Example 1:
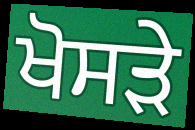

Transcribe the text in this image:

ਖੋਸੜੇ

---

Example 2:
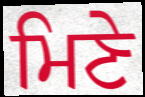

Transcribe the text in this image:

ਮਿਣੇ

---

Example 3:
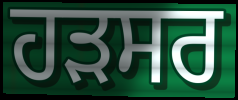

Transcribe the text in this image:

ਹੜਸਰ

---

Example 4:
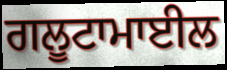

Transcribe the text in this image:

ਗਲੂਟਾਮਾਈਲ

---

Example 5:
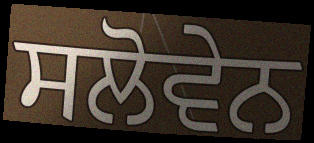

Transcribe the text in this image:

ਸਲੋਵੇਨ